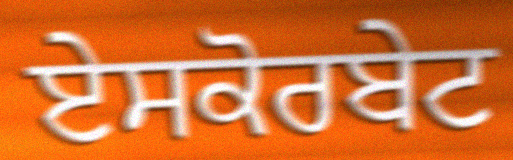
ਏਸਕੋਰਬੇਟ